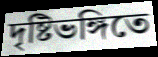
দৃষ্টিভঙ্গিতে